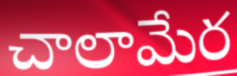
చాలామేర